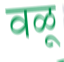
वळू